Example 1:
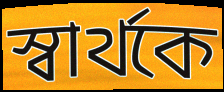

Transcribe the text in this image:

স্বার্থকে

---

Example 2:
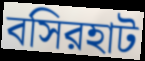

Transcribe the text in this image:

বসিরহাট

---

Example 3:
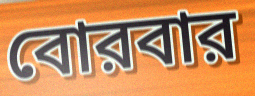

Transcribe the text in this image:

বোরবার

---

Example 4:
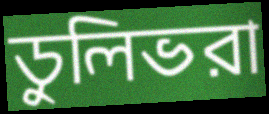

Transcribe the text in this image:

ডুলিভরা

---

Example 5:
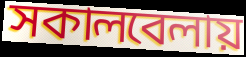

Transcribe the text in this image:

সকালবেলায়